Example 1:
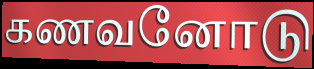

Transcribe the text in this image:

கணவனோடு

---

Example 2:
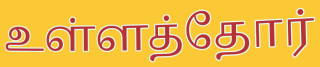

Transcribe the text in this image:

உள்ளத்தோர்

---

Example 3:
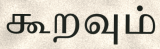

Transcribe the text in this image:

கூறவும்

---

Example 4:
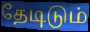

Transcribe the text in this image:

தேடிடும்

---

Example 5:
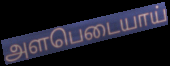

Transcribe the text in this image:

அளபெடையாய்